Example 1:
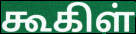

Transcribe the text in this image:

கூகிள்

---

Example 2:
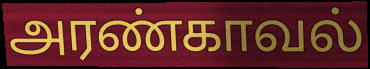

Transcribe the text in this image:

அரண்காவல்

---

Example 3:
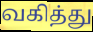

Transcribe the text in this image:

வகித்து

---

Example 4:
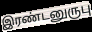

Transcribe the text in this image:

இரண்டனுருபு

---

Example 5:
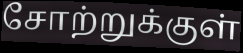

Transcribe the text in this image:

சோற்றுக்குள்